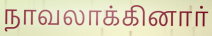
நாவலாக்கினார்